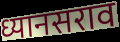
ध्यानसराव